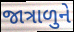
જાત્રાળુને